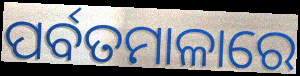
ପର୍ବତମାଳାରେ